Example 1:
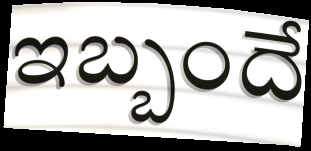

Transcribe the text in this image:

ఇబ్బందే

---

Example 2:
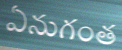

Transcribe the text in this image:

ఏనుగంత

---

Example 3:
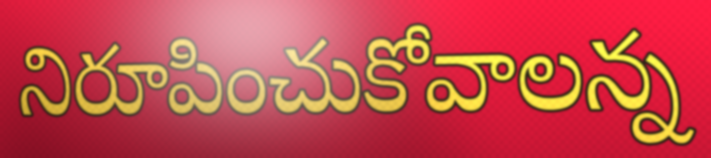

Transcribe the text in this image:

నిరూపించుకోవాలన్న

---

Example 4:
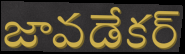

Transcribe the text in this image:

జావడేకర్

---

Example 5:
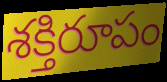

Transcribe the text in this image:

శక్తిరూపం